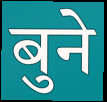
बुने